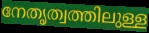
നേതൃത്വത്തിലുള്ള